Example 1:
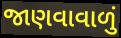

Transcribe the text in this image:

જાણવાવાળું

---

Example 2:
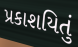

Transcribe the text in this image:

પ્રકાશયિતું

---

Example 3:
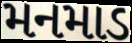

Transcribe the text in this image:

મનમાડ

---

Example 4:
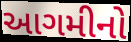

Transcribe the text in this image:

આગમીનો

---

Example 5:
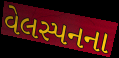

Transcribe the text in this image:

વેલસ્પનના